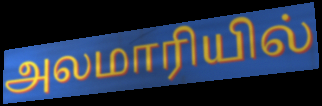
அலமாரியில்